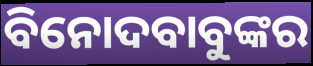
ବିନୋଦବାବୁଙ୍କର